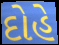
દોહે